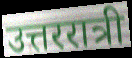
उत्तररात्री